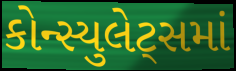
કોન્સ્યુલેટ્સમાં